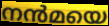
നൻമയെ